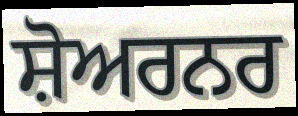
ਸ਼ੋਅਰਨਰ